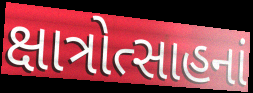
ક્ષાત્રોત્સાહનાં